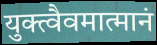
युक्त्वैवमात्मानं